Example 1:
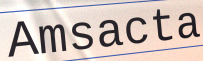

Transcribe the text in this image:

Amsacta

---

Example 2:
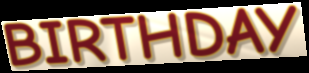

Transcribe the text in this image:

BIRTHDAY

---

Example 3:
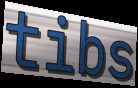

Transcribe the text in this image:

tibs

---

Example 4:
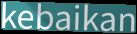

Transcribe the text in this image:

kebaikan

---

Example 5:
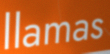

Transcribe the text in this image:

llamas